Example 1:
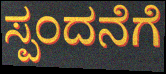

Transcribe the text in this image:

ಸ್ಪಂದನೆಗೆ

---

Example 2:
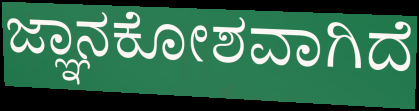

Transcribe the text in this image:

ಜ್ಞಾನಕೋಶವಾಗಿದೆ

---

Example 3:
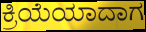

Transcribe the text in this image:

ಕ್ರಿಯೆಯಾದಾಗ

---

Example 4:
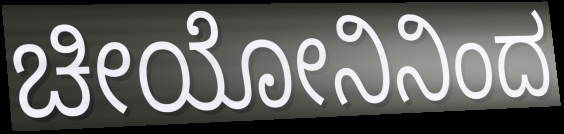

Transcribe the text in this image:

ಚೀಯೋನಿನಿಂದ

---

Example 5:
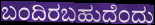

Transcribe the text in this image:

ಬಂದಿರಬಹುದೆಂದು